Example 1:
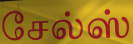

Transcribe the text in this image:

சேல்ஸ்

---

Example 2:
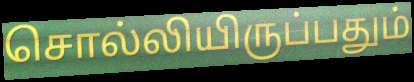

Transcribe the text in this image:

சொல்லியிருப்பதும்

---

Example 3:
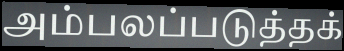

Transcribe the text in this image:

அம்பலப்படுத்தக்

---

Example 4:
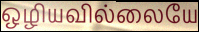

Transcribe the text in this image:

ஒழியவில்லையே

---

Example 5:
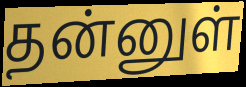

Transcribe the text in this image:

தன்னுள்